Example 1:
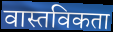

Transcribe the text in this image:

वास्तविकता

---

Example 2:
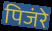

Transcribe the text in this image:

पिजंरे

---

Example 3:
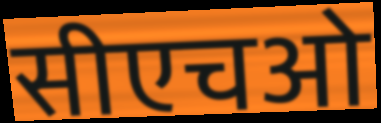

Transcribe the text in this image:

सीएचओ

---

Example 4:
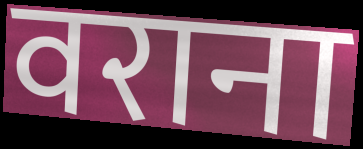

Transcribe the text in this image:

वराना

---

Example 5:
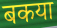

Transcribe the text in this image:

बकया